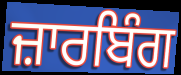
ਜ਼ਾਰਬਿੰਗ